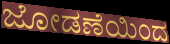
ಜೋಡಣೆಯಿಂದ